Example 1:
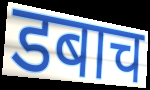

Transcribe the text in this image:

डबाच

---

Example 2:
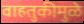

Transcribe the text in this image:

वाहतुकीमुळे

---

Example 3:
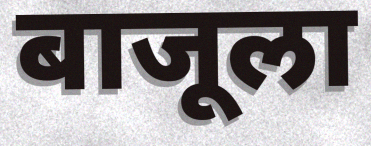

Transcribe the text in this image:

बाजूला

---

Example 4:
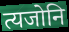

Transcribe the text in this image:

त्यजोनि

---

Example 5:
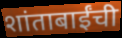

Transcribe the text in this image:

शांताबाईंची